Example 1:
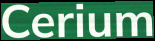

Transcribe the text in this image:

Cerium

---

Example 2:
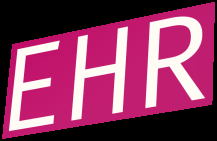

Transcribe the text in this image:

EHR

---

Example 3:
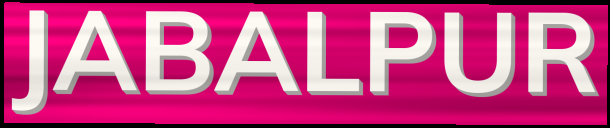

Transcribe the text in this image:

JABALPUR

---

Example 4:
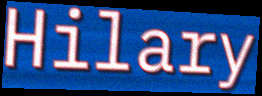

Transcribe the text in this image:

Hilary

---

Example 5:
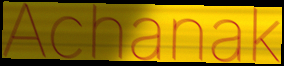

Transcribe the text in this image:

Achanak